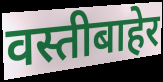
वस्तीबाहेर